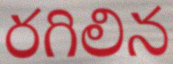
రగిలిన